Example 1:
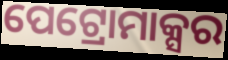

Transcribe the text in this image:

ପେଟ୍ରୋମାକ୍ସର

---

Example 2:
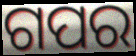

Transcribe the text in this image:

ଗପର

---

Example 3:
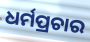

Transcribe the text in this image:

ଧର୍ମପ୍ରଚାର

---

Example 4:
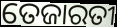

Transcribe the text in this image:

ତେଜାରତୀ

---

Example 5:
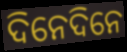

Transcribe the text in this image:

ଦିନେଦିନେ